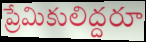
ప్రేమికులిద్దరూ